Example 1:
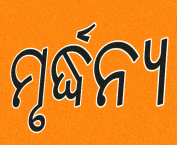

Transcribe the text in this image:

ମୃର୍ଦ୍ଧନ୍ୟ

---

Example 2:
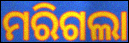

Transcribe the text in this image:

ମରିଗଲା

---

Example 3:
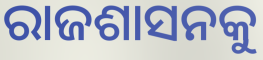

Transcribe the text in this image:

ରାଜଶାସନକୁ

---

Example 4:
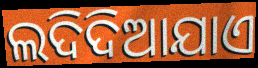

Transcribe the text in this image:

ଲଦିଦିଆଯାଏ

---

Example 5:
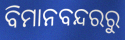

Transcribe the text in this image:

ବିମାନବନ୍ଦରରୁ